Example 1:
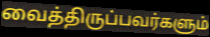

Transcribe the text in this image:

வைத்திருப்பவர்களும்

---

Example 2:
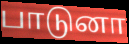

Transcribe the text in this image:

பாடுனா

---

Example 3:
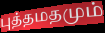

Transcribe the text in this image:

புத்தமதமும்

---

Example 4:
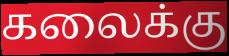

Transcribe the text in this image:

கலைக்கு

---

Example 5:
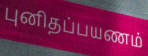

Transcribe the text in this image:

புனிதப்பயணம்